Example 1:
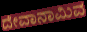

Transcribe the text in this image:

ದೇವಾನಾಮಿವ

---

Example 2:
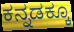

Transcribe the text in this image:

ಕನ್ನಡಕ್ಕೂ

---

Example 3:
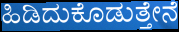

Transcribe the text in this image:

ಹಿಡಿದುಕೊಡುತ್ತೇನೆ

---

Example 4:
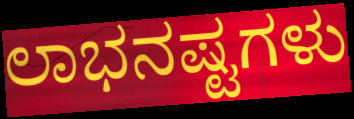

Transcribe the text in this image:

ಲಾಭನಷ್ಟಗಳು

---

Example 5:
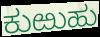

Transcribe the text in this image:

ಕುಱುಹು